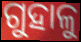
ଗୁହାଳୁ